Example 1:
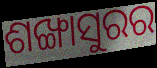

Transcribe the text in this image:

ଶଙ୍ଖାସୁରର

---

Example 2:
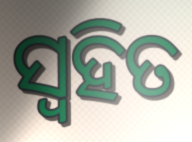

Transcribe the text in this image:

ସ୍ୱହିତ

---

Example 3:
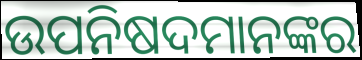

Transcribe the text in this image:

ଉପନିଷଦମାନଙ୍କର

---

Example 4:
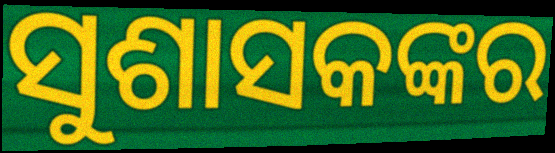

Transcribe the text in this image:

ସୁଶାସକଙ୍କର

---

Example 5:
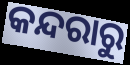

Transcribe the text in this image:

କନ୍ଦରାରୁ